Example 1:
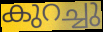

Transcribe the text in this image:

കുറച്ചു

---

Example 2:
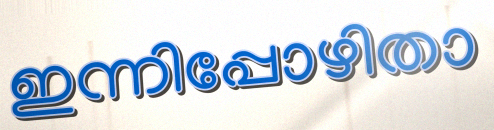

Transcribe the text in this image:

ഇന്നിപ്പോഴിതാ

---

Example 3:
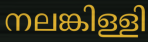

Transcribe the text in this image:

നലങ്കിള്ളി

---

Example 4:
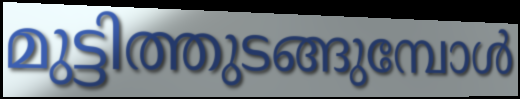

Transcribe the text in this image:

മുട്ടിത്തുടങ്ങുമ്പോൾ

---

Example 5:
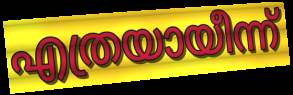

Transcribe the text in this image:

എത്രയായീന്ന്